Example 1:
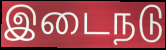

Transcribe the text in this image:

இடைநடு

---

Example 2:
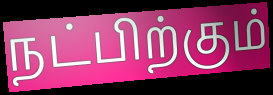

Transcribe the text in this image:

நட்பிற்கும்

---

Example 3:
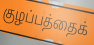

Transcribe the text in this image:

குழப்பத்தைக்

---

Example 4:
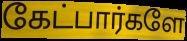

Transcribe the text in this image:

கேட்பார்களே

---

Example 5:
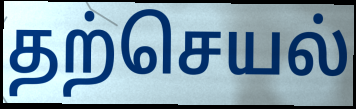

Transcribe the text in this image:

தற்செயல்